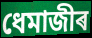
ধেমাজীৰ